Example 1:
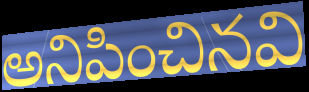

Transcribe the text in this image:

అనిపించినవి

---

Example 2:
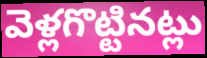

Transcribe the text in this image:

వెళ్లగొట్టినట్లు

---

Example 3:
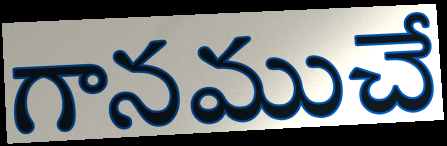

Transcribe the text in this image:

గానముచే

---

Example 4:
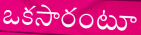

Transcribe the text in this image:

ఒకసారంటూ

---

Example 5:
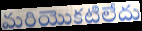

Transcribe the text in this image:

మరియొకటిలేదు